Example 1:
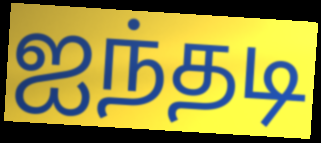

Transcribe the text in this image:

ஐந்தடி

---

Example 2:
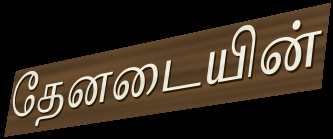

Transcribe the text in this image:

தேனடையின்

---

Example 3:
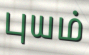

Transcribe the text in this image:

புயம்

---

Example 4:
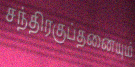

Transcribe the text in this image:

சந்திரகுப்தனையும்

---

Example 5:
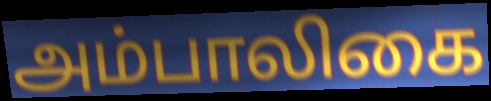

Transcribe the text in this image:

அம்பாலிகை